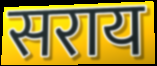
सराय